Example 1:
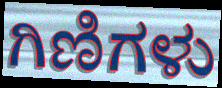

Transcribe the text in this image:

ಗಿಣಿಗಳು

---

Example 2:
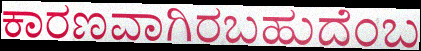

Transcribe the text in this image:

ಕಾರಣವಾಗಿರಬಹುದೆಂಬ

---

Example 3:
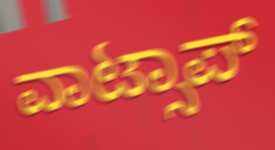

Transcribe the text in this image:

ವಾಟ್ಸಾಪ್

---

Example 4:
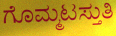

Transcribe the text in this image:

ಗೊಮ್ಮಟಸ್ತುತಿ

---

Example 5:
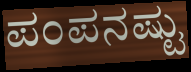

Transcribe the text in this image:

ಪಂಪನಷ್ಟು